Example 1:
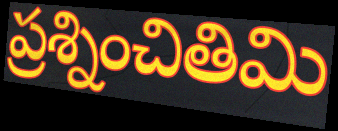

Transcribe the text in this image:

ప్రశ్నించితిమి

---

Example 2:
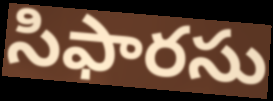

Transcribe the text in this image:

సిఫారసు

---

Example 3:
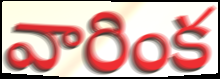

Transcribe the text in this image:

వారింక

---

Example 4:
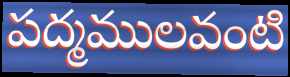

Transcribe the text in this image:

పద్మములవంటి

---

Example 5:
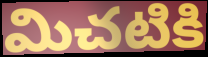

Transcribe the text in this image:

మిచటికి